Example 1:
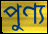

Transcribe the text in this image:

পুণ্য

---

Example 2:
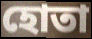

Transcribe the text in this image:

হোতা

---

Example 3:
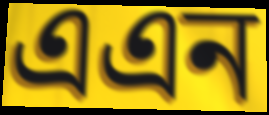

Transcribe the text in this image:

এএন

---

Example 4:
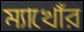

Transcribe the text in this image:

ম্যাখোঁর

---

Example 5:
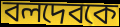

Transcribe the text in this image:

বলদেবকে